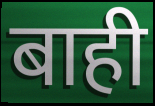
बाही